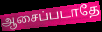
ஆசைப்படாதே